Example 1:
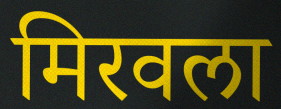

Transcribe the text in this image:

मिरवला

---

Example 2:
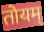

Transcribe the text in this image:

तोयम्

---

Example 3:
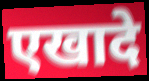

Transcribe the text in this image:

एखादे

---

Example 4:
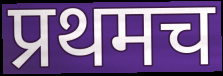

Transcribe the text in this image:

प्रथमच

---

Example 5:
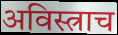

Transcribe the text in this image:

अविस्त्राच